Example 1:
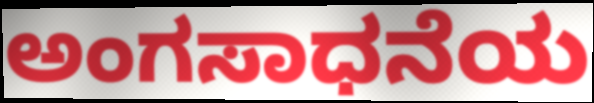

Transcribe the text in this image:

ಅಂಗಸಾಧನೆಯ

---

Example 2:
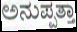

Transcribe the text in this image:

ಅನುಪ್ಪತ್ತಾ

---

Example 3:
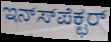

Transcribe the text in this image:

ಇನ್ಸ್‍ಪೆಕ್ಟರ್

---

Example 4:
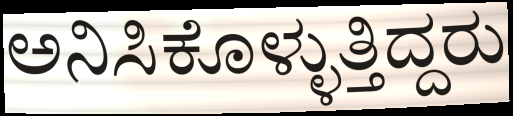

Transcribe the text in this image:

ಅನಿಸಿಕೊಳ್ಳುತ್ತಿದ್ದರು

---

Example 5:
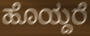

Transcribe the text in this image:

ಹೊಯ್ದರೆ